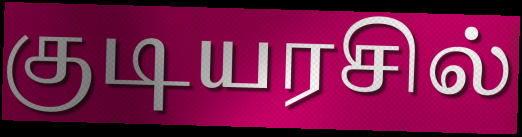
குடியரசில்